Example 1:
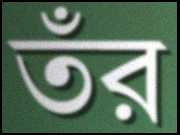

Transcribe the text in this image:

তঁর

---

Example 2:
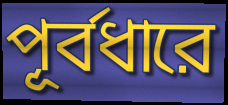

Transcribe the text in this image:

পূর্বধারে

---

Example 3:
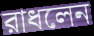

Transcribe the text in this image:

রাধলেন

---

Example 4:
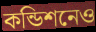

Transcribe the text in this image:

কন্ডিশনেও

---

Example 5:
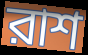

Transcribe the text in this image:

রাশ